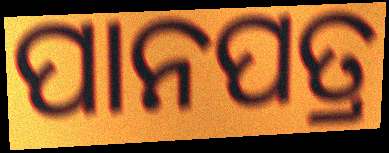
ପାନପତ୍ର